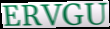
ERVGU